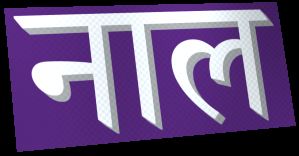
नाल